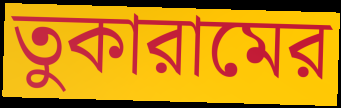
তুকারামের